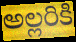
అల్లరికి